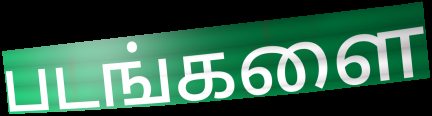
படங்களை